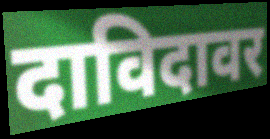
दाविदावर